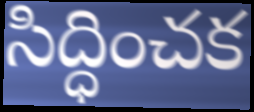
సిద్ధించక